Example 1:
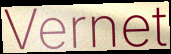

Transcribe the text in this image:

Vernet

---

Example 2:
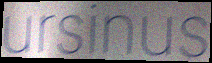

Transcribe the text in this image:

ursinus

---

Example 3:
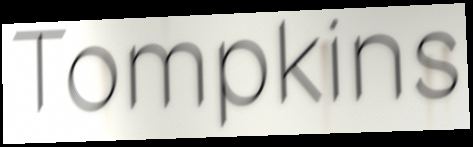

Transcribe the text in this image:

Tompkins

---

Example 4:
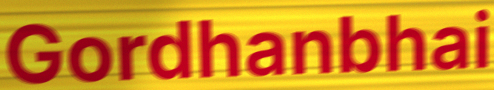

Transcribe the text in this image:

Gordhanbhai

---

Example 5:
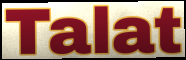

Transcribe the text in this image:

Talat